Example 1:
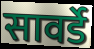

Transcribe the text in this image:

सावर्डे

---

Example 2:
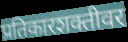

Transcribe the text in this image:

प्रतिकारशक्तीवर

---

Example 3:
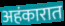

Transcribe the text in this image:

अहंकारात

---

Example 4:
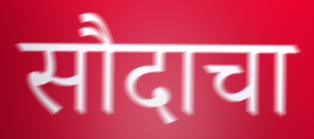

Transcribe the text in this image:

सौदाचा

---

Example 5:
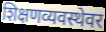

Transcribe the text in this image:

शिक्षणव्यवस्थेवर